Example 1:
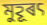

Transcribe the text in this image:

মুহূৰৎ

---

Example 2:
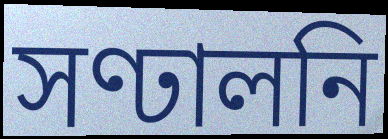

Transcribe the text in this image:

সণ্ঢালনি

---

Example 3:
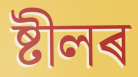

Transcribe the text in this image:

ষ্টীলৰ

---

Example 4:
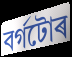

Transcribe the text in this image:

বৰ্গটোৰ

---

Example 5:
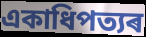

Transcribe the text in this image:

একাধিপত্যৰ